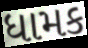
ધામક